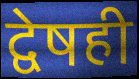
द्वेषही